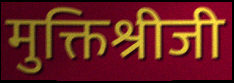
मुक्तिश्रीजी